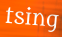
tsing